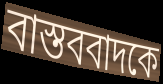
বাস্তববাদকে